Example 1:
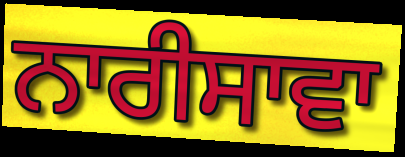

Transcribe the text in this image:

ਨਾਰੀਸਾਵਾ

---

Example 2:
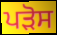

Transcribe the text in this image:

ਪੜੋਸ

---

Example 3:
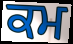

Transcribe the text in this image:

ਕਮ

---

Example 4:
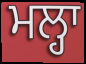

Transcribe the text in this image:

ਮਲ੍ਹਾ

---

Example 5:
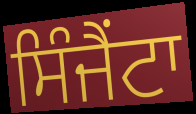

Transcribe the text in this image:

ਸਿੰਜੈਂਟਾ